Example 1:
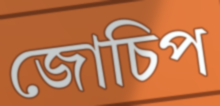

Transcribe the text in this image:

জোচিপ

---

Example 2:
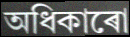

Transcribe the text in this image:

অধিকাৰো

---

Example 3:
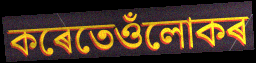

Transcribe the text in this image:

কৰেতেওঁলোকৰ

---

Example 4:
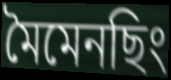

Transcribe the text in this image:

মৈমেনছিং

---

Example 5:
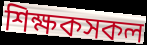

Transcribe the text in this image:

শিক্ষকসকল